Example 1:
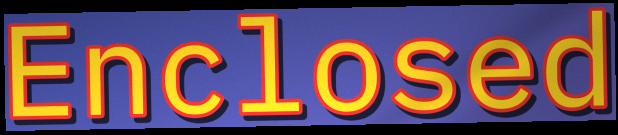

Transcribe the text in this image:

Enclosed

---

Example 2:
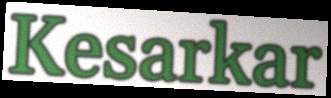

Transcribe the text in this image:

Kesarkar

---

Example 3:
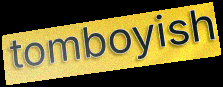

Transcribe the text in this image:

tomboyish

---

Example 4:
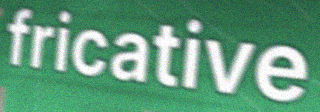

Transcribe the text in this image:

fricative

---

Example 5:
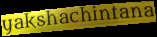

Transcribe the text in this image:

yakshachintana